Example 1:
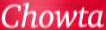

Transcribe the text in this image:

Chowta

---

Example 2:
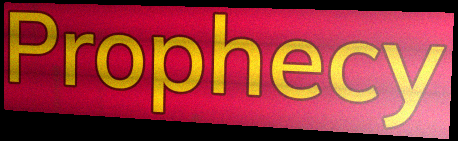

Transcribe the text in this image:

Prophecy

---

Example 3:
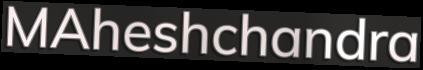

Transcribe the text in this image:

MAheshchandra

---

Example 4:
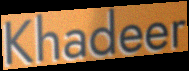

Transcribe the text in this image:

Khadeer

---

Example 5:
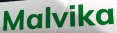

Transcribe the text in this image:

Malvika